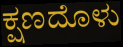
ಕ್ಷಣದೊಳು